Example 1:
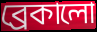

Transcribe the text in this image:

ব্রেকালো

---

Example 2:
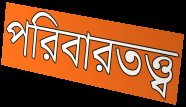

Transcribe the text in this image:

পরিবারতত্ত্ব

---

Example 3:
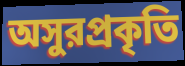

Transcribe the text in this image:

অসুরপ্রকৃতি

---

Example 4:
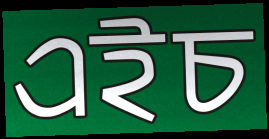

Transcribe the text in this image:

এইচ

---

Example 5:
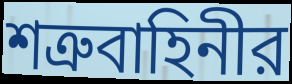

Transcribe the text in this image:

শত্রুবাহিনীর